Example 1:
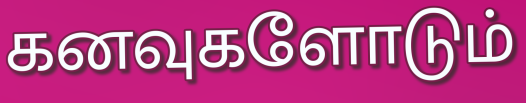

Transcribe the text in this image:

கனவுகளோடும்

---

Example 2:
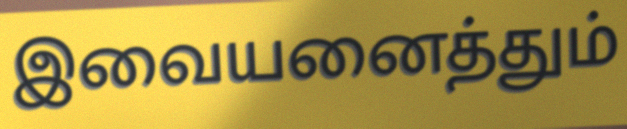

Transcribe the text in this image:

இவையனைத்தும்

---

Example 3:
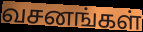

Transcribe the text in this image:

வசனங்கள்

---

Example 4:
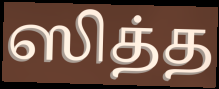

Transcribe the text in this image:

ஸித்த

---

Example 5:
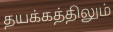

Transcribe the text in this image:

தயக்கத்திலும்